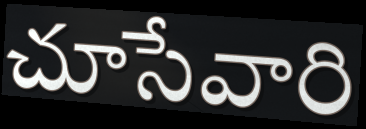
చూసేవారి